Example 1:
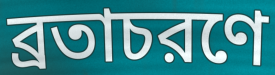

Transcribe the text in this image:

ব্রতাচরণে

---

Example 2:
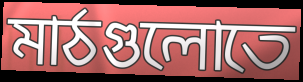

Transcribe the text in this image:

মাঠগুলোতে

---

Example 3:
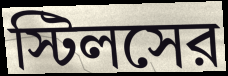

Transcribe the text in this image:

স্টিলসের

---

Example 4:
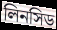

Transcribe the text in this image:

লিনসিড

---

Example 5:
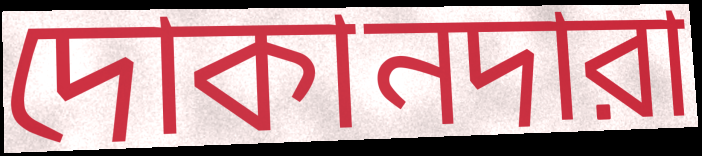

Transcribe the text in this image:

দোকানদারা